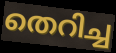
തെറിച്ച